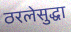
ठरलेसुद्धा